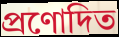
প্ৰণোদিত